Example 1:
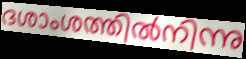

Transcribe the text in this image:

ദശാംശത്തിൽനിന്നു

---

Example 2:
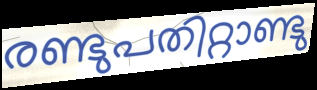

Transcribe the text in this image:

രണ്ടുപതിറ്റാണ്ടു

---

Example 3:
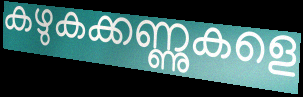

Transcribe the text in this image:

കഴുകക്കണ്ണുകളെ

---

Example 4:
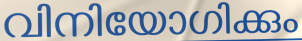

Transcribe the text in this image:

വിനിയോഗിക്കും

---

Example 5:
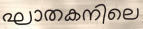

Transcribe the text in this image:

ഘാതകനിലെ